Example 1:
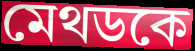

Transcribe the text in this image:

মেথডকে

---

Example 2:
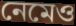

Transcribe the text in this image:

নেমেও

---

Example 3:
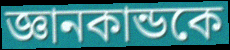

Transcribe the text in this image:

জ্ঞানকান্ডকে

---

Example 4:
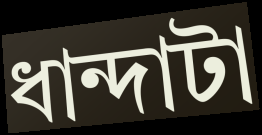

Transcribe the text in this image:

ধান্দাটা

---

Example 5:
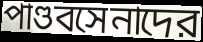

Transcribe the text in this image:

পাণ্ডবসেনাদের